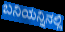
ಬನಿಯನ್ನಿನಲ್ಲಿ